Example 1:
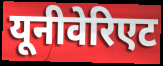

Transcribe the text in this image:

यूनीवेरिएट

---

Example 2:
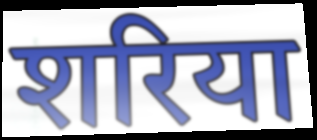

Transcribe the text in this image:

शरिया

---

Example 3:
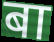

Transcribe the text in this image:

बा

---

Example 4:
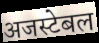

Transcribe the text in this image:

अजस्टेबल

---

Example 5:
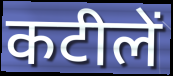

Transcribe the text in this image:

कटीलें